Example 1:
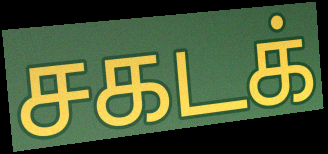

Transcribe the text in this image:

சகடக்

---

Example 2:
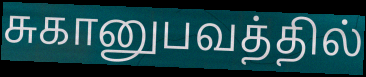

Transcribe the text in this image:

சுகானுபவத்தில்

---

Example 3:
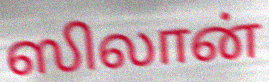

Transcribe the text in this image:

ஸிலான்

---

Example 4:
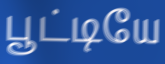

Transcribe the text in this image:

பூட்டியே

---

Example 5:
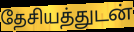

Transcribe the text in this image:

தேசியத்துடன்